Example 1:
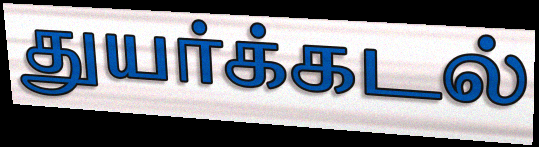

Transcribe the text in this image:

துயர்க்கடல்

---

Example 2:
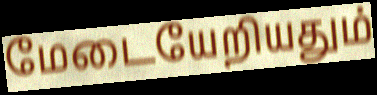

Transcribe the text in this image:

மேடையேறியதும்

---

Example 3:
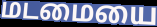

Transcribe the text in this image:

மடமையை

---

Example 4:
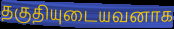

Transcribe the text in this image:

தகுதியுடையவனாக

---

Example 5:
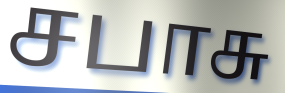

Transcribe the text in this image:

சபாசு